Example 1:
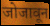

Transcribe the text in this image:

जोजावून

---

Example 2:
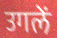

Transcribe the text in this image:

उगलें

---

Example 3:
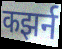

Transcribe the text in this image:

कझर्न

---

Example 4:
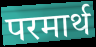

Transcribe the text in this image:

परमार्थ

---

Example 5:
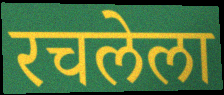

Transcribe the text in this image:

रचलेला